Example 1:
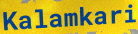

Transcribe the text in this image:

Kalamkari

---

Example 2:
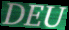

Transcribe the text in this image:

DEU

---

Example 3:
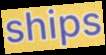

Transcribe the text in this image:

ships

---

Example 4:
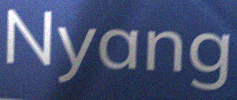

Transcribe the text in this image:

Nyang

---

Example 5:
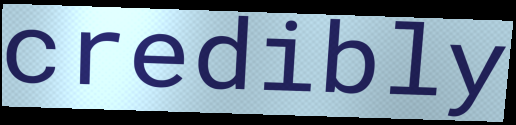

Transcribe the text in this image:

credibly